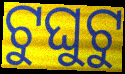
ଟୁଘୁଟୁ